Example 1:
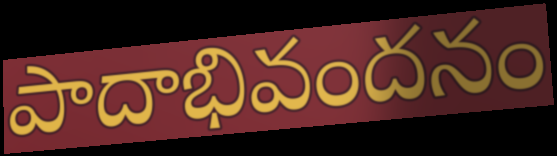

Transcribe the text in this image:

పాదాభివందనం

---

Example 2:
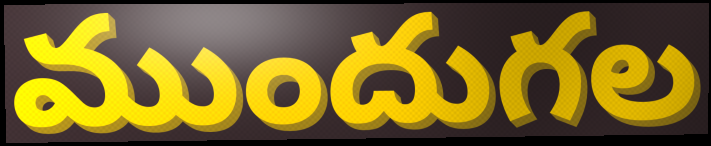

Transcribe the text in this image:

ముందుగల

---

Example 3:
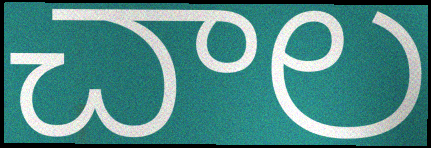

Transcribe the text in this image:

చాల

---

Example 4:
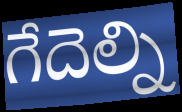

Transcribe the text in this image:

గేదెల్ని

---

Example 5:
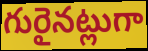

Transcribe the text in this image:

గురైనట్లుగా